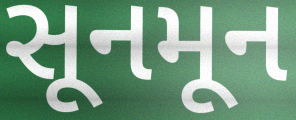
સૂનમૂન